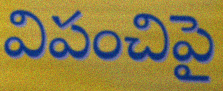
విపంచిపై